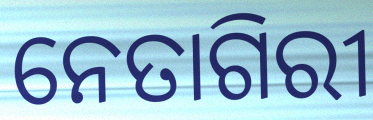
ନେତାଗିରୀ